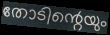
തോടിന്റെയും